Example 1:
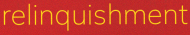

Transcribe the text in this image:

relinquishment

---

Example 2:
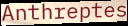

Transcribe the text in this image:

Anthreptes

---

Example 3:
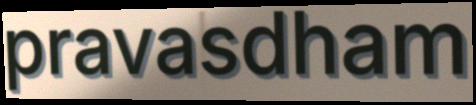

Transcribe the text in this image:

pravasdham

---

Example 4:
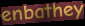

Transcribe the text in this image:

enbathey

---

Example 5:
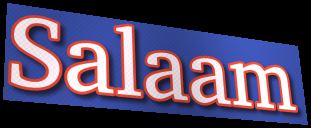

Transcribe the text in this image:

Salaam